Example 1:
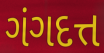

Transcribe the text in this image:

ગંગદત્ત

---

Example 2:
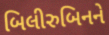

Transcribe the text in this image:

બિલીરુબિનને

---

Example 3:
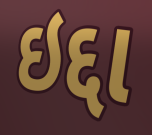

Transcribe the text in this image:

ઇદ્દા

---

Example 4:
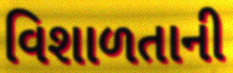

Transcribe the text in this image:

વિશાળતાની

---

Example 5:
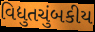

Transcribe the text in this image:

વિદ્યુતચુંબકીય